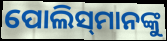
ପୋଲିସ୍‌ମାନଙ୍କୁ